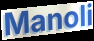
Manoli